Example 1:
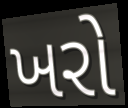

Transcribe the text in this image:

ખરો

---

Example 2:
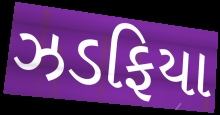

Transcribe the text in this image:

ઝડફિયા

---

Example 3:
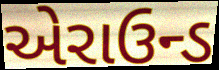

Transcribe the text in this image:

એરાઉન્ડ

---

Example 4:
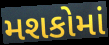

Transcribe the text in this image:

મશકોમાં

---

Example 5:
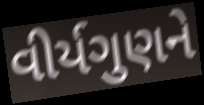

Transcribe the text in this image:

વીર્યગુણને